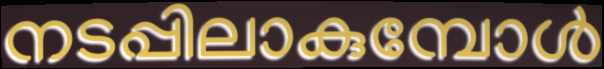
നടപ്പിലാകുമ്പോൾ